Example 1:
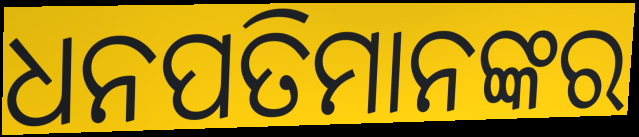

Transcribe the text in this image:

ଧନପତିମାନଙ୍କର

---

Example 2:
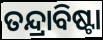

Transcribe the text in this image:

ତନ୍ଦ୍ରାବିଷ୍ଟା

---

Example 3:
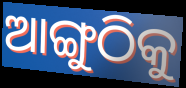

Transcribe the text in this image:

ଆଙ୍ଗୁଠିକୁ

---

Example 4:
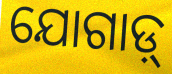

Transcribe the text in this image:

ଯୋଗାଡ଼୍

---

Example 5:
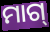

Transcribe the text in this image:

ମାଗ୍